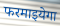
फरमाइयेगा